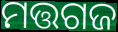
ମତ୍ତଗଜ